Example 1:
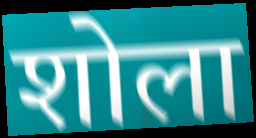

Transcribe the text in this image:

शोला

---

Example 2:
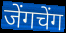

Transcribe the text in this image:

जेंगचेंग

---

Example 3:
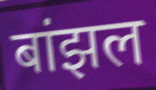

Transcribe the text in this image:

बांझल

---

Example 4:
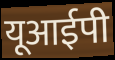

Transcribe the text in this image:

यूआईपी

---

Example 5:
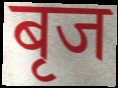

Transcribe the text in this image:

बृज